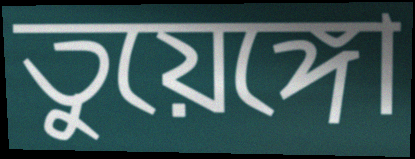
তুয়েঙ্গো